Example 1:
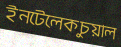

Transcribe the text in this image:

ইনটেলেকচুয়াল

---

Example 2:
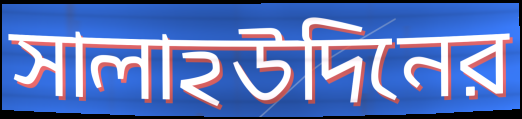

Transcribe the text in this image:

সালাহউদিনের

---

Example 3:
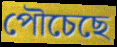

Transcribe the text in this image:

পৌচেছে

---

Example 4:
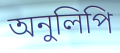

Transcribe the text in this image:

অনুলিপি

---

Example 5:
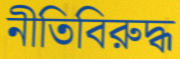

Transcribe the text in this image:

নীতিবিরুদ্ধ